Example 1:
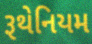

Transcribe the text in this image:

રૂથેનિયમ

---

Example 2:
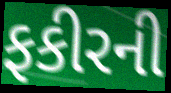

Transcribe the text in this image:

ફકીરની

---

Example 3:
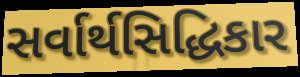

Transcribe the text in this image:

સર્વાર્થસિદ્ધિકાર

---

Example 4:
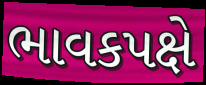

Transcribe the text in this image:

ભાવકપક્ષે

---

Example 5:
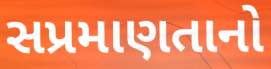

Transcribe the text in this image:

સપ્રમાણતાનો